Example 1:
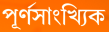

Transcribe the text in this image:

পূর্ণসাংখ্যিক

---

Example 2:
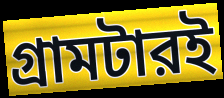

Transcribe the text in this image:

গ্রামটারই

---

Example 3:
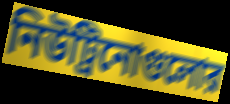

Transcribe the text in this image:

নিউট্রিনোগুলোর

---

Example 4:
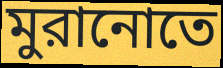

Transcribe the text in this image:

মুরানোতে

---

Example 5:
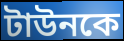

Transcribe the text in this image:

টাউনকে